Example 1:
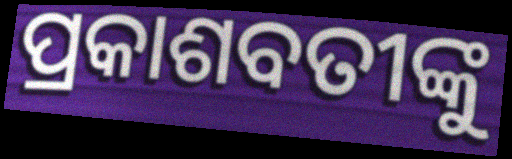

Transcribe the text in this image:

ପ୍ରକାଶବତୀଙ୍କୁ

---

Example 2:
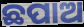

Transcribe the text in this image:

ଛପାଅ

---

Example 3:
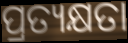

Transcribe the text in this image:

ପ୍ରତ୍ୟକ୍ଷତା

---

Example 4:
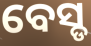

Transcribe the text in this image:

ବେସ୍ଡ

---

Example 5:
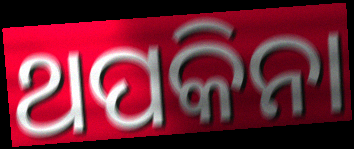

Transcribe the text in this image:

ଥପକିନା